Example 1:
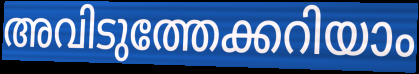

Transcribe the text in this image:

അവിടുത്തേക്കറിയാം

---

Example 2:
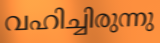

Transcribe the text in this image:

വഹിച്ചിരുന്നു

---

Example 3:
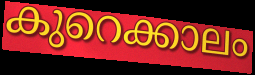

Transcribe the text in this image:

കുറെക്കാലം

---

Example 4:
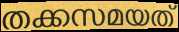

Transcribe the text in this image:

തക്കസമയത്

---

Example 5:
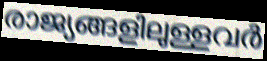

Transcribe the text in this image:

രാജ്യങ്ങളിലുള്ളവർ